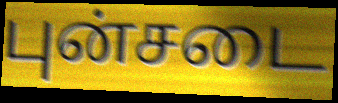
புன்சடை